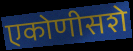
एकोणीसशे